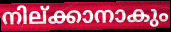
നില്ക്കാനാകും